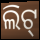
ଲିଟ୍